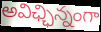
అవిఛ్ఛిన్నంగా